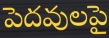
పెదవులపై